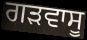
ਗੜਵਾਸੂ